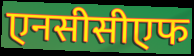
एनसीसीएफ